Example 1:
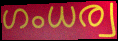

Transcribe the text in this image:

ഗംധര്വ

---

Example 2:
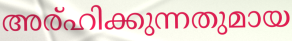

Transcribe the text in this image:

അര്ഹിക്കുന്നതുമായ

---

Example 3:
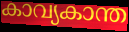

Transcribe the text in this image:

കാവ്യകാന്ത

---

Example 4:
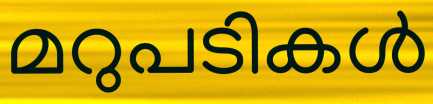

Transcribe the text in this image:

മറുപടികൾ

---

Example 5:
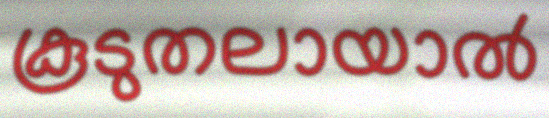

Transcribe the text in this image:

കൂടുതലായാൽ